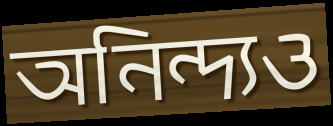
অনিন্দ্যও